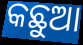
କଛୁଆ